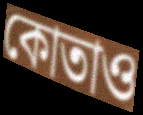
কোতাও